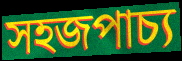
সহজপাচ্য